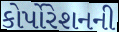
કોર્પોરેશનની